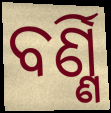
ବର୍ଣ୍ଣି